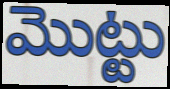
మొట్టు